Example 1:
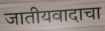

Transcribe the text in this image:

जातीयवादाचा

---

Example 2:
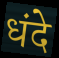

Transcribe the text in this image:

धंदे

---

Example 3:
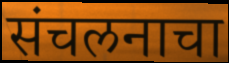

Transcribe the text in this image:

संचलनाचा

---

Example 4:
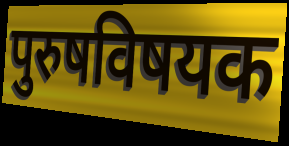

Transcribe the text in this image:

पुरुषविषयक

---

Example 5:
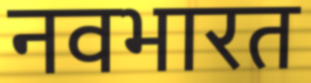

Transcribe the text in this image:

नवभारत